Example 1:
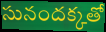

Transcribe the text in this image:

సునందక్కతో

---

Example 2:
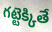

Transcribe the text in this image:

గట్టెక్కితే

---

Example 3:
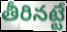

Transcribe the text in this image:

తీరినట్టే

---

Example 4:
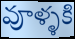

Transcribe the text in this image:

వూళ్ళకి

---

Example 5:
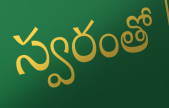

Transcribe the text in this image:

స్వరంతో